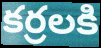
కర్రలకి